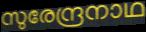
സുരേന്ദ്രനാഥ